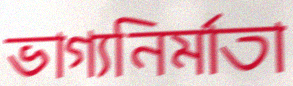
ভাগ্যনির্মাতা